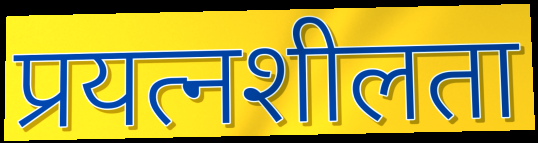
प्रयत्नशीलता